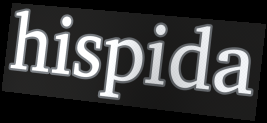
hispida